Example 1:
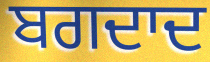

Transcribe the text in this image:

ਬਗਦਾਦ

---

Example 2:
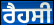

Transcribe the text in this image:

ਰੈਹਸੀ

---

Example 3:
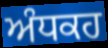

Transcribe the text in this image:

ਅੰਧਕਹ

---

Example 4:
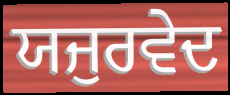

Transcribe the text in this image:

ਯਜੁਰਵੇਦ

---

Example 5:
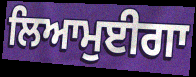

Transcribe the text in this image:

ਲਿਆਮੁਈਗਾ